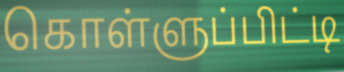
கொள்ளுப்பிட்டி